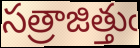
సత్రాజిత్తుఁ